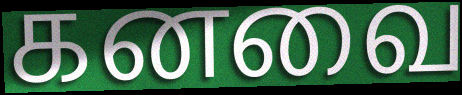
கனவை